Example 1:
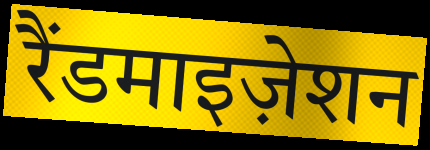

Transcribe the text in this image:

रैंडमाइज़ेशन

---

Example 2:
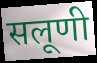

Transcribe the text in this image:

सलूणी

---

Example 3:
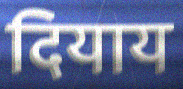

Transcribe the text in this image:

दियाय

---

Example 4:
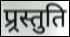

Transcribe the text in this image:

प्र्रस्तुति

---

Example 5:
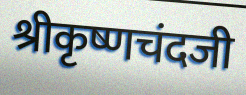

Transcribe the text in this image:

श्रीकृष्णचंदजी